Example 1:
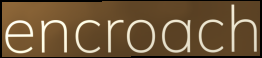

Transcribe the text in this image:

encroach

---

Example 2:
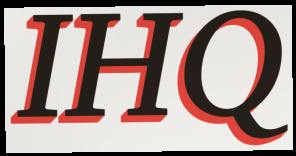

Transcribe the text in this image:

IHQ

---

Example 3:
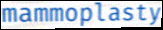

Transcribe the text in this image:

mammoplasty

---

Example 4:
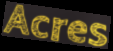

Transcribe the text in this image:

Acres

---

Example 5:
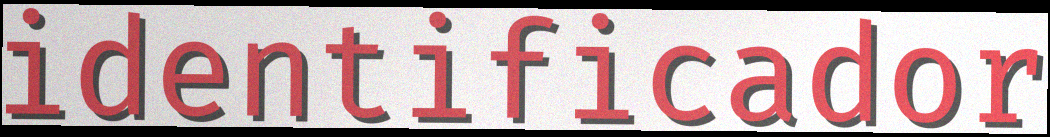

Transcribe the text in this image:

identificador